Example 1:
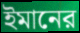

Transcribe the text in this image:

ইমানের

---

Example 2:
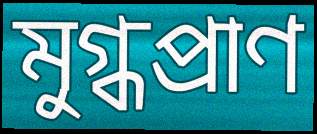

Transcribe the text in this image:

মুগ্ধপ্রাণ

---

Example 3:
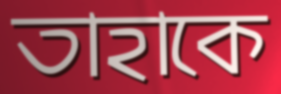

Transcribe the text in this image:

তাহাকে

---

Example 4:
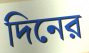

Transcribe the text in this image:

দিনের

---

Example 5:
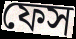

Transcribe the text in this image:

ফেস